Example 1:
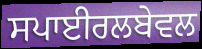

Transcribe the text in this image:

ਸਪਾਈਰਲਬੇਵਲ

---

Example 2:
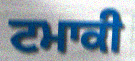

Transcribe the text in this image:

ਟਮਾਕੀ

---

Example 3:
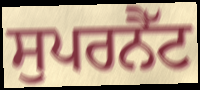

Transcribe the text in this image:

ਸੁਪਰਨੈੱਟ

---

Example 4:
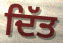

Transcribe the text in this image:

ਦਿੱਤ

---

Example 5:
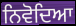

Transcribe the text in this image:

ਨਿਵੋਦਿਆ